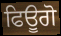
ਫਿਊਗੋ